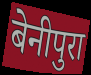
बेनीपुरा